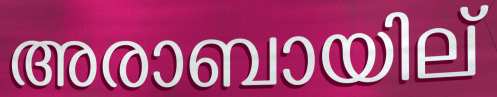
അരാബായില്